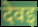
देवइ